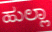
ಹುಲ್ಲಾ